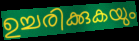
ഉച്ചരിക്കുകയും